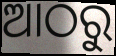
ଆଠରୁ